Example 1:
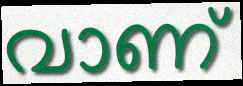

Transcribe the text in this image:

വാണ്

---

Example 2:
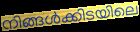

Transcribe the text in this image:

നിങ്ങൾക്കിടയിലെ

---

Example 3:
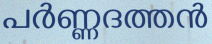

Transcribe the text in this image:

പർണ്ണദത്തൻ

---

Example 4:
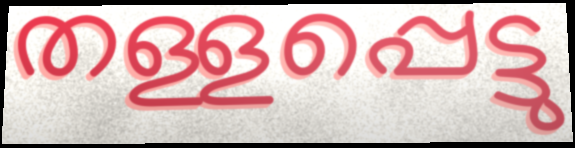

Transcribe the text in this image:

തള്ളപ്പെട്ടു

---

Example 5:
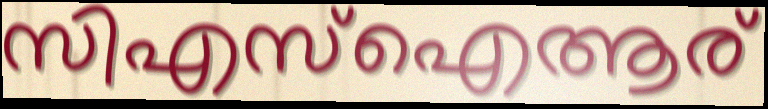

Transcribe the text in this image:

സിഎസ്ഐആര്